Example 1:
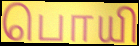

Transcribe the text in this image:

பொயி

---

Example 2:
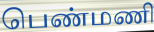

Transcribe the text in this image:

பெண்மணி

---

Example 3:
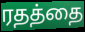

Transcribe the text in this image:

ரதத்தை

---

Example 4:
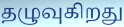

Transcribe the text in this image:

தழுவுகிறது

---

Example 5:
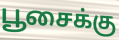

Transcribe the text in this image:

பூசைக்கு